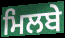
ਮਿਲਬੇ